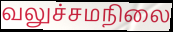
வலுச்சமநிலை